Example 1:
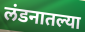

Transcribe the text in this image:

लंडनातल्या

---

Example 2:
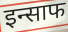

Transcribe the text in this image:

इन्साफ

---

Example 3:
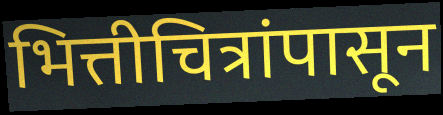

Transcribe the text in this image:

भित्तीचित्रांपासून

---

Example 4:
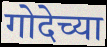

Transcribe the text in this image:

गोदेच्या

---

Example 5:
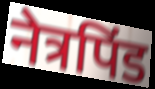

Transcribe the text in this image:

नेत्रपिंड